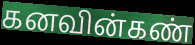
கனவின்கண்